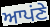
ਆਪਂਣੇ